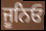
ਜੂਨਿਓ